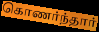
கொணர்ந்தார்